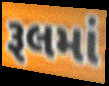
રૂલમાં